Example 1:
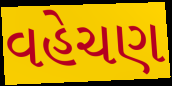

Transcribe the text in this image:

વહેચણ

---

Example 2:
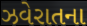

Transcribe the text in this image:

ઝવેરાતના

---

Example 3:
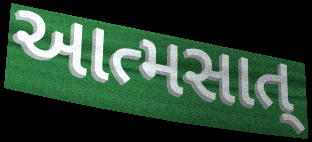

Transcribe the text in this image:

આત્મસાત્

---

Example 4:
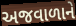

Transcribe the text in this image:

અજવાળાને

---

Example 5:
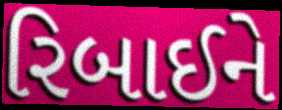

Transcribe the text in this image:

રિબાઈને